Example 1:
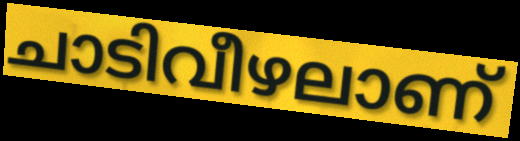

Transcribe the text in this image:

ചാടിവീഴലാണ്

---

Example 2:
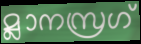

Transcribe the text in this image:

മ്ലാനസ്രഗ്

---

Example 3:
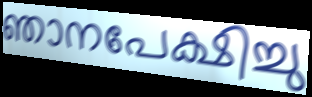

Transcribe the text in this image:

ഞാനപേക്ഷിച്ചു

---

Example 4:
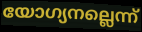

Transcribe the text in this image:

യോഗ്യനല്ലെന്ന്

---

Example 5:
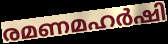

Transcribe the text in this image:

രമണമഹർഷി